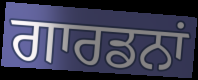
ਗਾਰਡਨਾਂ